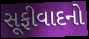
સૂફીવાદનો